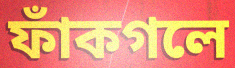
ফাঁকগলে